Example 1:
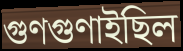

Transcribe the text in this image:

গুণগুণাইছিল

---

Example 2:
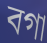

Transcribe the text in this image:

বগা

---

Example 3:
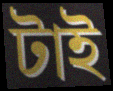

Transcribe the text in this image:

টাই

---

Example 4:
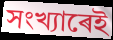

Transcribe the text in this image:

সংখ্যাৰেই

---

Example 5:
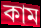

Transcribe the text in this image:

কাম